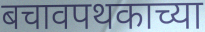
बचावपथकाच्या